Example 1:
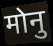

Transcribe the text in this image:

मोनु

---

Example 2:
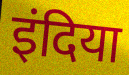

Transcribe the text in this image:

इंदिया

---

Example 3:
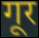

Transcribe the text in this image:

गूर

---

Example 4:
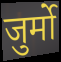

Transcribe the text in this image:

जुर्मो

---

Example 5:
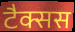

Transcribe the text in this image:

टैक्सस